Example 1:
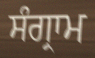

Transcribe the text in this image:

ਸੰਗ੍ਰਾਮ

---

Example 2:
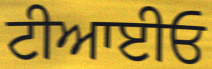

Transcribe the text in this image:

ਟੀਆਈਓ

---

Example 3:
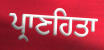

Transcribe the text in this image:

ਪ੍ਰਾਣਹਿਤਾ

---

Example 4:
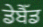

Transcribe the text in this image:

ਡੇਬੈੱਡ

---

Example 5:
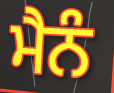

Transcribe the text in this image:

ਮੈਨੰ